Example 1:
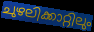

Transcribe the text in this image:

ചുഴലിക്കാറ്റിലും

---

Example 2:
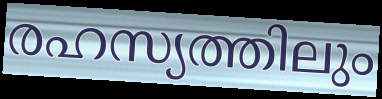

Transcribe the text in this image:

രഹസ്യത്തിലും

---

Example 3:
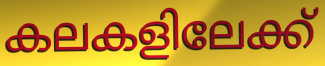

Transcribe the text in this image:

കലകളിലേക്ക്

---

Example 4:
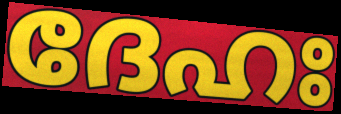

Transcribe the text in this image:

ദേഹഃ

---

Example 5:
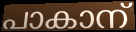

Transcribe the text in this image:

പാകാന്